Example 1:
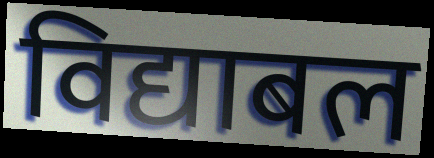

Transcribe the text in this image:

विद्याबल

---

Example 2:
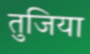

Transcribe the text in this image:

तुजिया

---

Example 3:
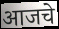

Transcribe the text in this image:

आजचे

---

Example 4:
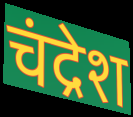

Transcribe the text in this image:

चंद्रेश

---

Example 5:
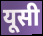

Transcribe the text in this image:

यूसी